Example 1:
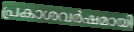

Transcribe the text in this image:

പ്രകാശവർഷമായി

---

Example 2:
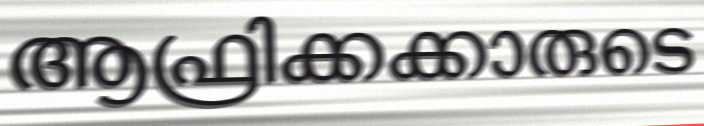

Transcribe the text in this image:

ആഫ്രിക്കക്കാരുടെ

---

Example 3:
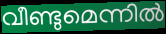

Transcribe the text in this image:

വീണ്ടുമെന്നിൽ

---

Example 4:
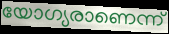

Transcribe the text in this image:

യോഗ്യരാണെന്ന്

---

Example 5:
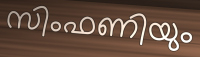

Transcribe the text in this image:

സിംഫണിയും